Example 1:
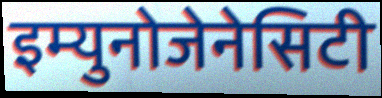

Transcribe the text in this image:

इम्युनोजेनेसिटी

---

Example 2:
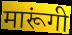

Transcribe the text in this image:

मारूंगी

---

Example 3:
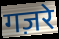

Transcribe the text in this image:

गज़रे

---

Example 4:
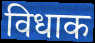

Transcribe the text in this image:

विधाक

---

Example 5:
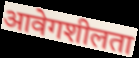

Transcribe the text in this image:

आवेगशीलता